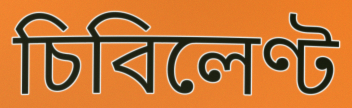
চিবিলেণ্ট